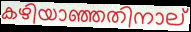
കഴിയാഞ്ഞതിനാല്